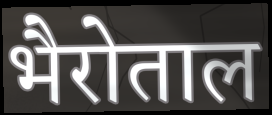
भैरोताल